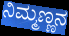
ನಿಮ್ಮಣ್ಣನ